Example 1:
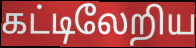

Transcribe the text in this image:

கட்டிலேறிய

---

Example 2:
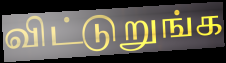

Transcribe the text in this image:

விட்டுறுங்க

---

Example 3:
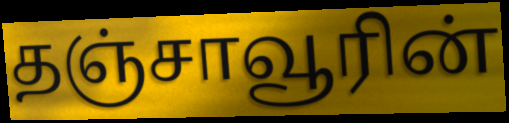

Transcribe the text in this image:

தஞ்சாவூரின்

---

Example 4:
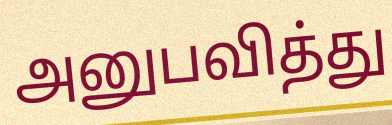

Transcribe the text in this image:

அனுபவித்து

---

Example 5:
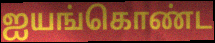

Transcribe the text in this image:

ஐயங்கொண்ட